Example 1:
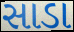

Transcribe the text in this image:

સાડા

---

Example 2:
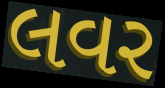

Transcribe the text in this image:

લવર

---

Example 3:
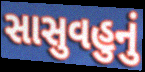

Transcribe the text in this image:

સાસુવહુનું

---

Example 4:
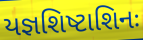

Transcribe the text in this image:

યજ્ઞશિષ્ટાશિનઃ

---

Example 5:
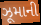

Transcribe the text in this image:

ઝૂમાની